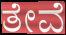
ತೇವೆ